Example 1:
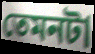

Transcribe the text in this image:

তেমনটা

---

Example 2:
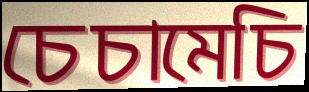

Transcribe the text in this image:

চেচামেচি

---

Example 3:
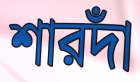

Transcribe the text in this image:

শারদাঁ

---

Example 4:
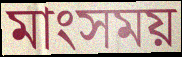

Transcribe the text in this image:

মাংসময়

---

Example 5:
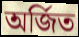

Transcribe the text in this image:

অর্জিত